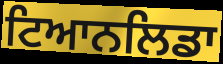
ਟਿਆਨਲਿਡਾ